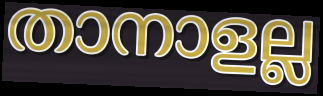
താനാളല്ല